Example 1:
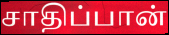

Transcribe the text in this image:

சாதிப்பான்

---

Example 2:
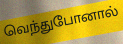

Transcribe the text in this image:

வெந்துபோனால்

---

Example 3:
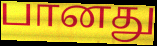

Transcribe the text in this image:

பானது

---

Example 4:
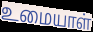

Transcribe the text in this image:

உமையாள்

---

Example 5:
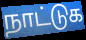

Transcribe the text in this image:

நாட்டுக